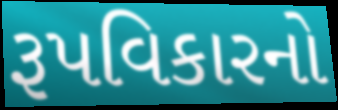
રૂપવિકારનો